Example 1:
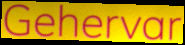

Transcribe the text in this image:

Gehervar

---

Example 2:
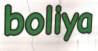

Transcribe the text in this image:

boliya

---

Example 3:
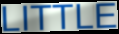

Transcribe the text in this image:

LITTLE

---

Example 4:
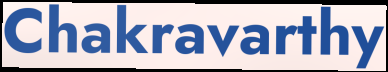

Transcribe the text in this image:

Chakravarthy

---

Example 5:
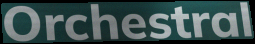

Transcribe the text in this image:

Orchestral